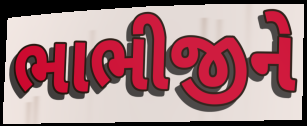
ભાભીજીને